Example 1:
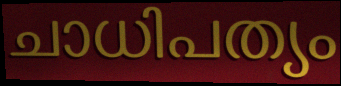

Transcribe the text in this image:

ചാധിപത്യം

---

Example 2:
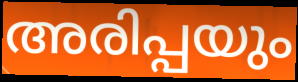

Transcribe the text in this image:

അരിപ്പയും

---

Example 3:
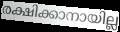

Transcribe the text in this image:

രക്ഷിക്കാനായില്ല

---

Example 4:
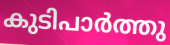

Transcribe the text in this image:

കുടിപാർത്തു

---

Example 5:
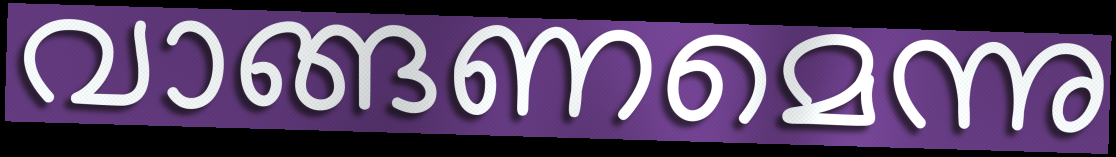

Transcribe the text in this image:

വാങ്ങണമെന്നു